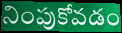
నింపుకోవడం